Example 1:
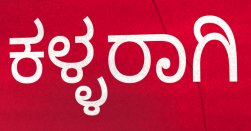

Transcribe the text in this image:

ಕಳ್ಳರಾಗಿ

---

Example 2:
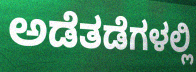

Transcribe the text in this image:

ಅಡೆತಡೆಗಳಲ್ಲಿ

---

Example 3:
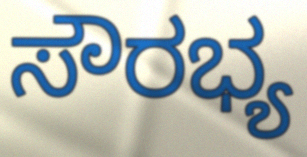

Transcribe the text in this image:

ಸೌರಭ್ಯ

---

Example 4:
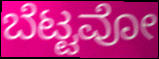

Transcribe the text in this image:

ಬೆಟ್ಟವೋ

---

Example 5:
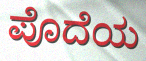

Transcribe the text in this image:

ಪೊದೆಯ